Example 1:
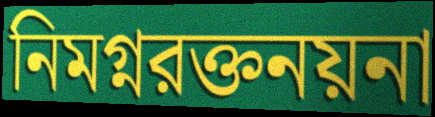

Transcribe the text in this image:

নিমগ্নরক্তনয়না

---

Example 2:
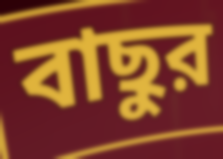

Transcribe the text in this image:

বাছুর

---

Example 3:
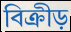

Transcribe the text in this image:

বিক্রীড়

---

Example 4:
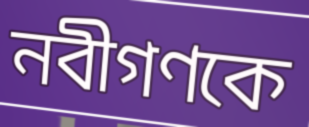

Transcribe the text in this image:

নবীগণকে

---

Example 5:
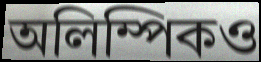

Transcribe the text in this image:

অলিম্পিকও